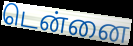
டென்னை